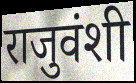
राजुवंशी